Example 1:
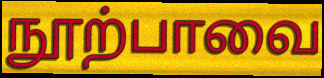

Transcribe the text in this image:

நூற்பாவை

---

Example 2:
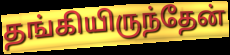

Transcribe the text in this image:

தங்கியிருந்தேன்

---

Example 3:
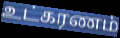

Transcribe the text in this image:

உட்கரணம்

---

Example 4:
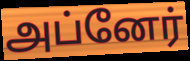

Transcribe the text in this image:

அப்னேர்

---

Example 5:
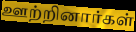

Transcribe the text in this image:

ஊற்றினார்கள்